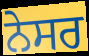
ਨੇਸਰ